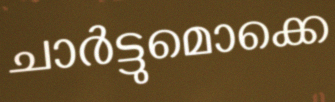
ചാർട്ടുമൊക്കെ